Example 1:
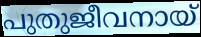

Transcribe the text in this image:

പുതുജീവനായ്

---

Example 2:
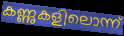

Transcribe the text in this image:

കണ്ണുകളിലൊന്ന്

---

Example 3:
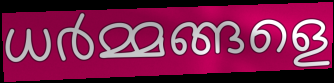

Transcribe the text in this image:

ധർമ്മങ്ങളെ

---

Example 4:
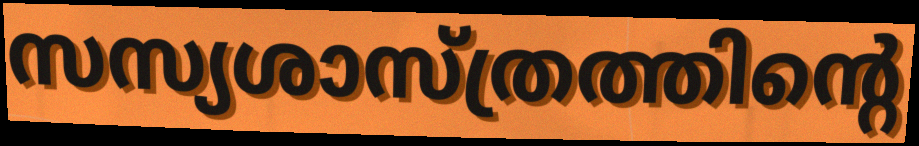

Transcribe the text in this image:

സസ്യശാസ്ത്രത്തിന്റെ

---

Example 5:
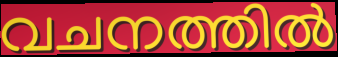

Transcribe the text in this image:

വചനത്തിൽ